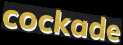
cockade